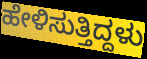
ಹೇಳಿಸುತ್ತಿದ್ದಳು